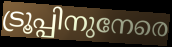
ട്രൂപ്പിനുനേരെ